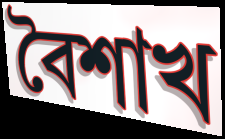
বৈশাখ